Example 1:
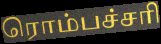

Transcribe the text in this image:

ரொம்பச்சரி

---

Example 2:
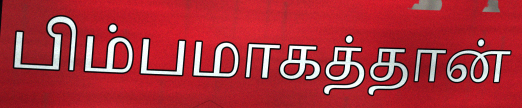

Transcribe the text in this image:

பிம்பமாகத்தான்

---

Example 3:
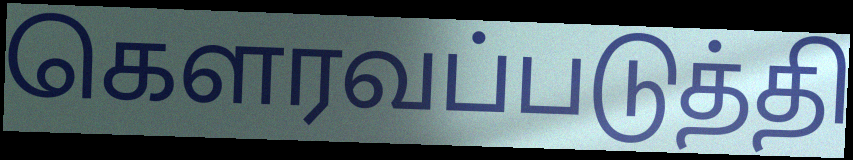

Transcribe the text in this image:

கெளரவப்படுத்தி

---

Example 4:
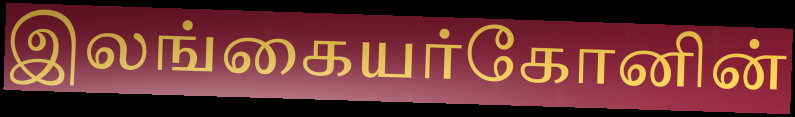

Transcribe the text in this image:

இலங்கையர்கோனின்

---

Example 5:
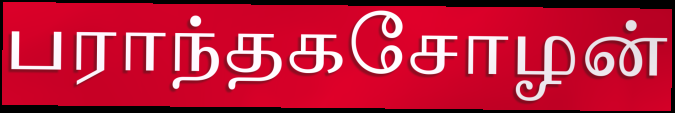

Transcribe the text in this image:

பராந்தகசோழன்